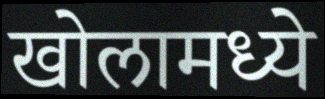
खोलामध्ये